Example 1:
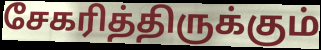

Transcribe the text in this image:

சேகரித்திருக்கும்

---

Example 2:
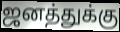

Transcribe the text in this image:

ஜனத்துக்கு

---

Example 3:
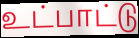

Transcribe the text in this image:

உட்பாட்டு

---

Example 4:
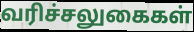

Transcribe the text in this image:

வரிச்சலுகைகள்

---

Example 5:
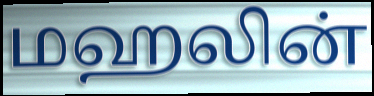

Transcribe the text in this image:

மஹலின்